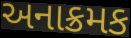
અનાક્રમક